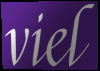
viel